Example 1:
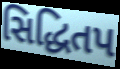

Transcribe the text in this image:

સિદ્ધિતપ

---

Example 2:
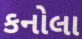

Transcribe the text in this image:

કનોલા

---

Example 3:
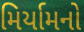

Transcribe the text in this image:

મિર્યામનો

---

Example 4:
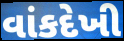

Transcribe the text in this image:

વાંકદેખી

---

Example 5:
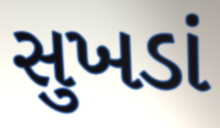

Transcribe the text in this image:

સુખડાં